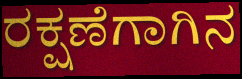
ರಕ್ಷಣೆಗಾಗಿನ